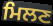
ਮਿਲਣ